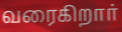
வரைகிறார்